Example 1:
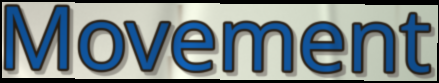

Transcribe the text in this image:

Movement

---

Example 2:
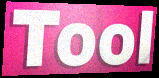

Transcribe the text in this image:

Tool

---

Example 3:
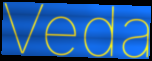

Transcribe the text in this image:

Veda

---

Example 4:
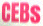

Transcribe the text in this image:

CEBs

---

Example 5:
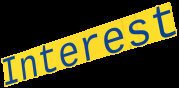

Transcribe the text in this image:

Interest